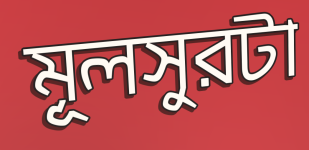
মূলসুরটা